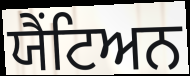
ਯੈਂਟਿਅਨ